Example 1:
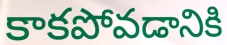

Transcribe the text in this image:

కాకపోవడానికి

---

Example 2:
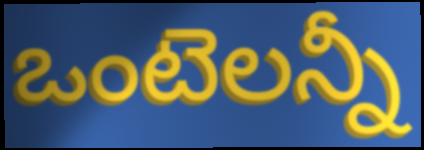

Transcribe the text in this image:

ఒంటెలన్నీ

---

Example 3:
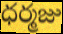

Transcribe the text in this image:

ధర్మజు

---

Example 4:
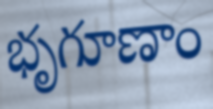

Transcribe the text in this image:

భృగూణాం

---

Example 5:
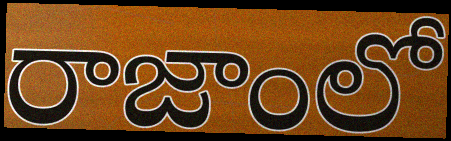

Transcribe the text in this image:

రాజాంలో